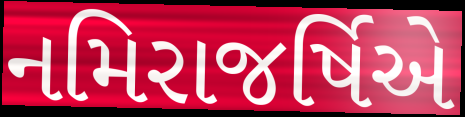
નમિરાજર્ષિએ